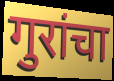
गुरांचा